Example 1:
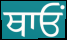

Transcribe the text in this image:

ਥਾਓਂ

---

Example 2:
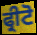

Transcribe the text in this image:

ਫ੍ਰੀਟੋ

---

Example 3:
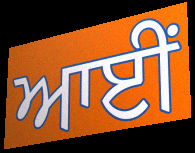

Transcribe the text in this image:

ਆਈਂ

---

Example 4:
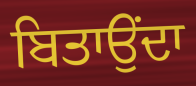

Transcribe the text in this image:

ਬਿਤਾਉਂਦਾ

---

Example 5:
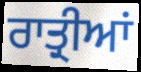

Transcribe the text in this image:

ਰਾਤ੍ਰੀਆਂ